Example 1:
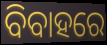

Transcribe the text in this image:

ବିବାହରେ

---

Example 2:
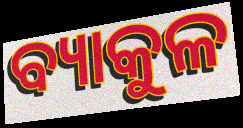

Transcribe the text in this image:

ବ୍ୟାକୁଳ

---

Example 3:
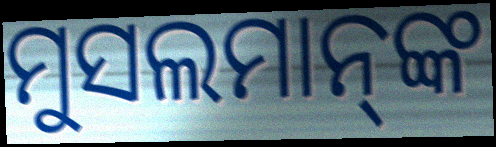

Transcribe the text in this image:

ମୁସଲମାନ୍‍ଙ୍କ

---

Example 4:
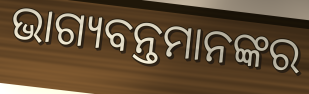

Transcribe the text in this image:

ଭାଗ୍ୟବନ୍ତମାନଙ୍କର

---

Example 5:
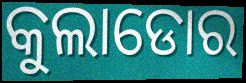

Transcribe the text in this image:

କୁଲାଡୋର